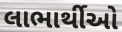
લાભાર્થીઓ